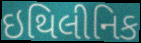
ઇથિલીનિક